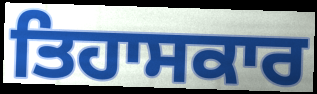
ਤਿਹਾਸਕਾਰ